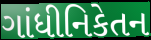
ગાંધીનિકેતન